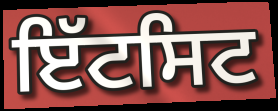
ਇੱਟਸਿਟ